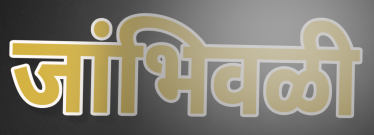
जांभिवळी